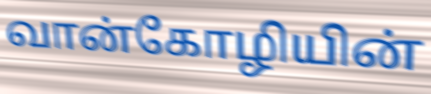
வான்கோழியின்